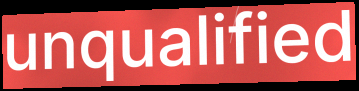
unqualified